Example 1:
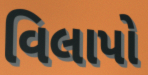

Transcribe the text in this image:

વિલાપો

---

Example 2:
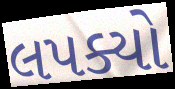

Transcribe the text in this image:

લપક્યો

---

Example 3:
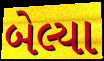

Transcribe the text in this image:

બેલ્યા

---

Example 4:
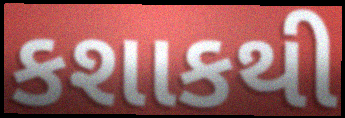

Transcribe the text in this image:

કશાકથી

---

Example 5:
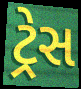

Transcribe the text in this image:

ટ્રેસ